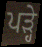
ਪੜ੍ਹੇ